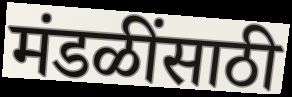
मंडळींसाठी